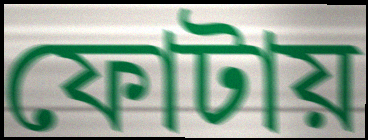
ফোটায়